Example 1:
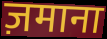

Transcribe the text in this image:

ज़माना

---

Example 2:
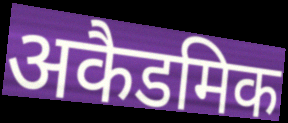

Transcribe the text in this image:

अकैडमिक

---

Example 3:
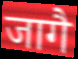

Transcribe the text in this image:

जागै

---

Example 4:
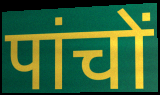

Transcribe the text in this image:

पांचों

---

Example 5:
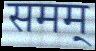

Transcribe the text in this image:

समम्